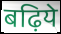
बढ़िये